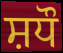
ਸ਼ਧੌ